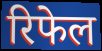
रिफेल